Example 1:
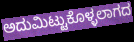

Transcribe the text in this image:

ಅದುಮಿಟ್ಟುಕೊಳ್ಳಲಾಗದ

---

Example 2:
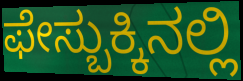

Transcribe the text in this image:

ಫೇಸ್ಬುಕ್ಕಿನಲ್ಲಿ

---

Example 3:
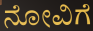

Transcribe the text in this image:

ನೋವಿಗೆ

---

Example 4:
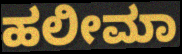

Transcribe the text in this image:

ಹಲೀಮಾ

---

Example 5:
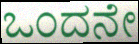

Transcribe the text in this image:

ಒಂದನೇ